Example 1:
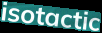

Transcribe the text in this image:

isotactic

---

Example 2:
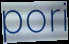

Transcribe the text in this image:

pori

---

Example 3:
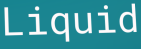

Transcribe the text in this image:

Liquid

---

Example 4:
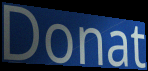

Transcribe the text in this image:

Donat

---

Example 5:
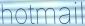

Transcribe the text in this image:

hotmail